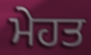
ਮੇਹਤ